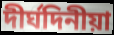
দীৰ্ঘদিনীয়া